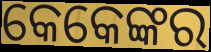
କେକେଙ୍କର